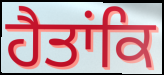
ਹੈਤਾਂਕਿ